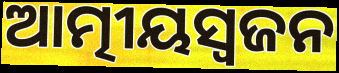
ଆତ୍ମୀୟସ୍ୱଜନ